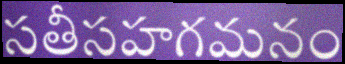
సతీసహగమనం